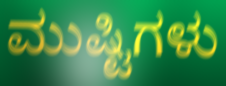
ಮುಷ್ಟಿಗಳು